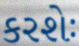
કરશેઃ